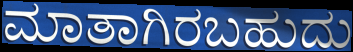
ಮಾತಾಗಿರಬಹುದು